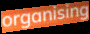
organising